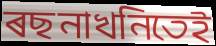
ৰছনাখনিতেই